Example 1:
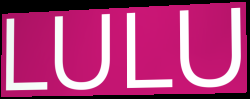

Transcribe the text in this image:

LULU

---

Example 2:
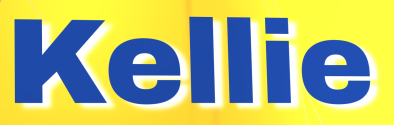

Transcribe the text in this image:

Kellie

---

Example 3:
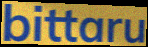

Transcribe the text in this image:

bittaru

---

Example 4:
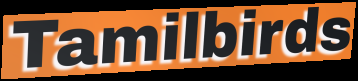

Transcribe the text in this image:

Tamilbirds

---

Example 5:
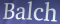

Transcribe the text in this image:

Balch